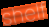
shelf